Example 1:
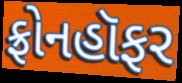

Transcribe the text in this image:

ફ્રોનહૉફર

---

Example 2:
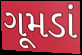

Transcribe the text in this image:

ગૂમડાં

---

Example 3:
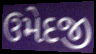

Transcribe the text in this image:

ઉમેદજી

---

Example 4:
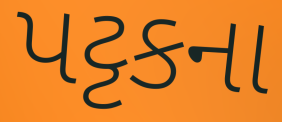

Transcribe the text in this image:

પટ્ટકના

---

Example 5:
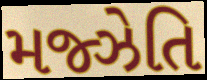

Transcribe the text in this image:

મજ્ઝેતિ